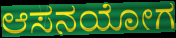
ಆಸನಯೋಗ